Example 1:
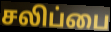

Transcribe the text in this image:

சலிப்பை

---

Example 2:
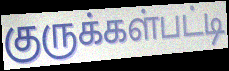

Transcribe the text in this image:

குருக்கள்பட்டி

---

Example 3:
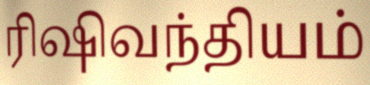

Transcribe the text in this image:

ரிஷிவந்தியம்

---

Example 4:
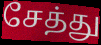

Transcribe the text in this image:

சேத்து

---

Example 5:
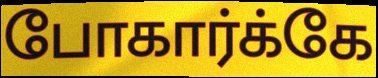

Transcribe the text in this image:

போகார்க்கே